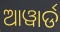
ଆୱାର୍ଡ